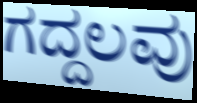
ಗದ್ದಲವು